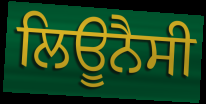
ਲਿਊਨੈਸੀ